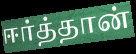
ஈர்த்தான்